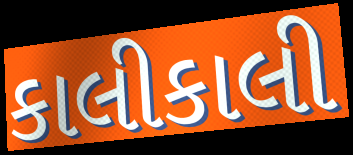
કાલીકાલી